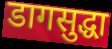
डागसुद्धा